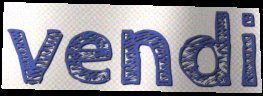
vendi